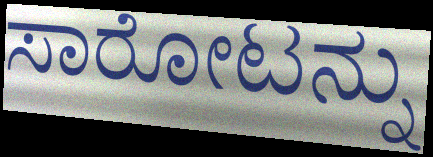
ಸಾರೋಟನ್ನು